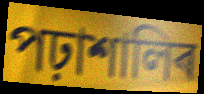
পঢ়াশালিৰ